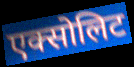
एक्सोलिट